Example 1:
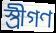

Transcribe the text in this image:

স্ত্রীগণ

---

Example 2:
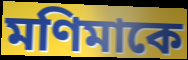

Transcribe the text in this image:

মণিমাকে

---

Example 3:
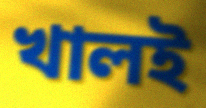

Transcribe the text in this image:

খালই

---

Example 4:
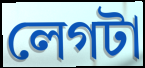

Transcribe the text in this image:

লেগটা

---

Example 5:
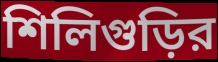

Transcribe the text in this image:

শিলিগুড়ির